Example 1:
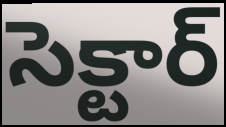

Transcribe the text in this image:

సెక్టార్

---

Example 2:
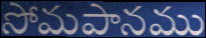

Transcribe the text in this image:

సోమపానము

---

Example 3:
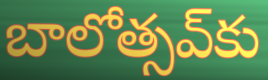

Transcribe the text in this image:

బాలోత్సవ్‌కు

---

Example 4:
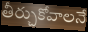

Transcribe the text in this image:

తీర్చుకోవాలనే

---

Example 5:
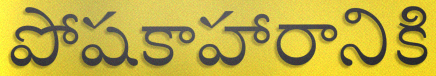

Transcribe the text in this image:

పోషకాహారానికి